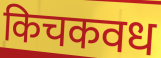
किचकवध